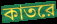
কাতরে